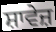
ਸ਼ਾਵੇਜ਼